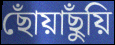
ছোঁয়াছুঁয়ি